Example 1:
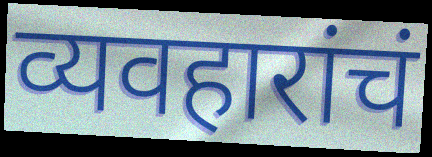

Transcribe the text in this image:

व्यवहारांचं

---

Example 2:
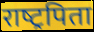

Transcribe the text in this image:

राष्ट्रपिता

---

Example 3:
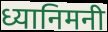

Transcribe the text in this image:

ध्यानिमनी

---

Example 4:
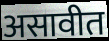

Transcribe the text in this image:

असावीत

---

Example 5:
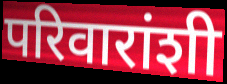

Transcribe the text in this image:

परिवारांशी